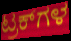
ಟ್ರಕ್‌ಗಳ